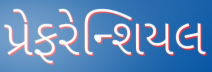
પ્રેફરેન્શિયલ